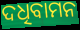
ଦଧିବାମନ